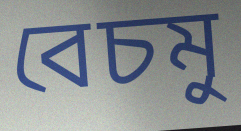
বেচমু